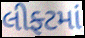
લીફ્ટમાં